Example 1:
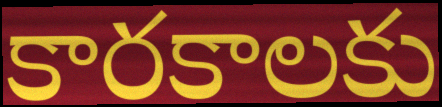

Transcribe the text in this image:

కారకాలకు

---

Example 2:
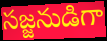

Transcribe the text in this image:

సజ్జనుడిగా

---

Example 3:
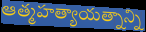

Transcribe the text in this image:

ఆత్మహత్యాయత్నాన్ని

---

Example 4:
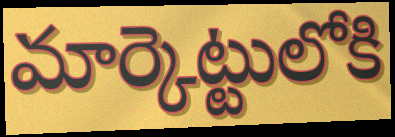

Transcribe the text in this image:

మార్కెట్టులోకి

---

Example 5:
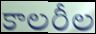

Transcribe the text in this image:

కాలరీల